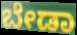
ಬೇಡಾ